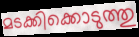
മടക്കിക്കൊടുത്തു